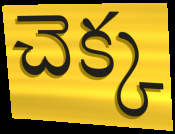
చెక్క